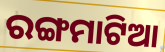
ରଙ୍ଗମାଟିଆ